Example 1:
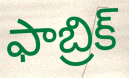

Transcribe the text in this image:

ఫాబ్రిక్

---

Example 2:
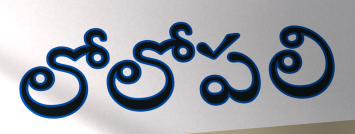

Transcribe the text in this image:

లోలోపలి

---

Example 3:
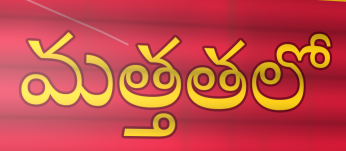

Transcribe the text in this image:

మత్తతలో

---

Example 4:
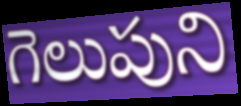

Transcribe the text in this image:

గెలుపుని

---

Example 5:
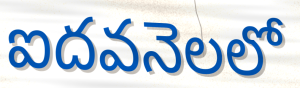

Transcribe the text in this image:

ఐదవనెలలో